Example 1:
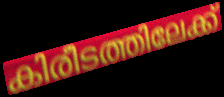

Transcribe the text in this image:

കിരീടത്തിലേക്ക്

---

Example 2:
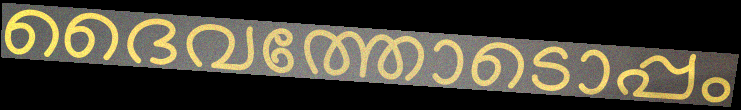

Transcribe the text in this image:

ദൈവത്തോടൊപ്പം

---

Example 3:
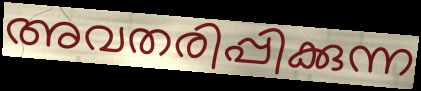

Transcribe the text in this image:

അവതരിപ്പിക്കുന്ന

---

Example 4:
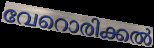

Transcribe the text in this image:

വേറൊരിക്കൽ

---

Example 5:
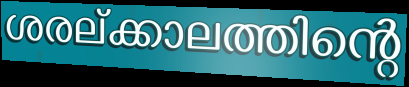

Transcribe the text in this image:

ശരല്ക്കാലത്തിന്റെ